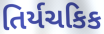
તિર્યચકિક